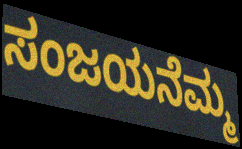
ಸಂಜಯನೆಮ್ಮ